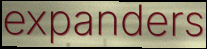
expanders